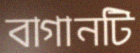
বাগানটি